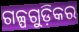
ଗଳ୍ପଗୁଡ଼ିକର